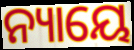
ନ୍ୟାୟେ